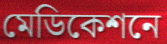
মেডিকেশনে